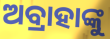
ଅବ୍ରାହାଙ୍କୁ